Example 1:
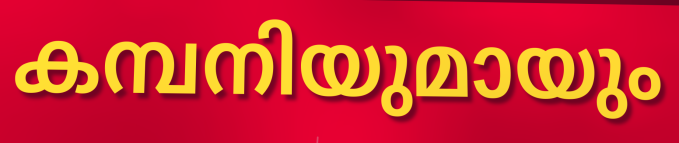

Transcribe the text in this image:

കമ്പനിയുമായും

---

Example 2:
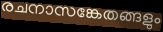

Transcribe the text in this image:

രചനാസങ്കേതങ്ങളും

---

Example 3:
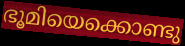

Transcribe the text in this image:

ഭൂമിയെക്കൊണ്ടു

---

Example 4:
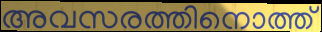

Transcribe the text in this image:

അവസരത്തിനൊത്ത്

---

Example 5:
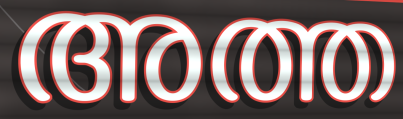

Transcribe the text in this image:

അത്ത